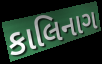
કાલિનાગ